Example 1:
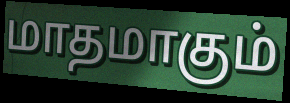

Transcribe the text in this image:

மாதமாகும்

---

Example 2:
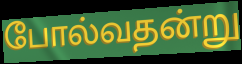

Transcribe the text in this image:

போல்வதன்று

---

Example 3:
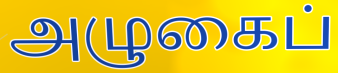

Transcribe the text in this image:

அழுகைப்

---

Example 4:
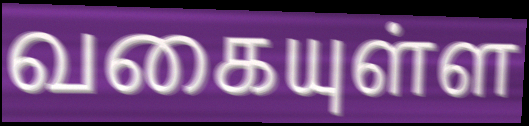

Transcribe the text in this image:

வகையுள்ள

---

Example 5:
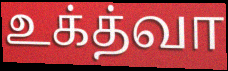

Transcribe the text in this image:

உக்த்வா